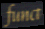
funct